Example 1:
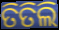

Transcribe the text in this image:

ତିତିଲି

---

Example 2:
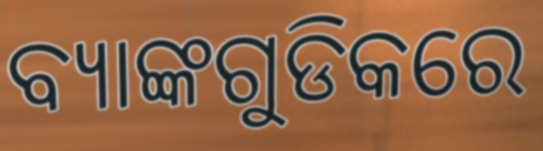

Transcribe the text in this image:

ବ୍ୟାଙ୍କଗୁଡିକରେ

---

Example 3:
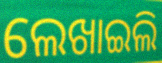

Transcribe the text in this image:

ଲେଖାଇଲି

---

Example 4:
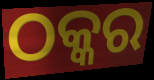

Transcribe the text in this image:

ଠକ୍କର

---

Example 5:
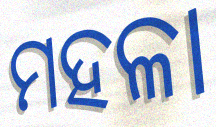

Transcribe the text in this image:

ମହଳା